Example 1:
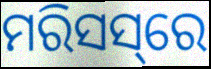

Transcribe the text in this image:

ମରିସସ୍‌ରେ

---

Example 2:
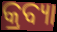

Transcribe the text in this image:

କ୍ରବ୍ୟା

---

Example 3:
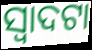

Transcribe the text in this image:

ସ୍ଵାଦଟା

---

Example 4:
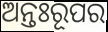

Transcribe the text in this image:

ଅନ୍ତଃରୂପର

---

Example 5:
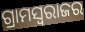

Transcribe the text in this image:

ଗ୍ରାମସ୍ୱରାଜର